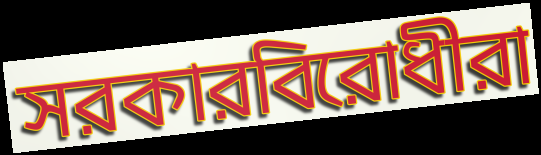
সরকারবিরোধীরা